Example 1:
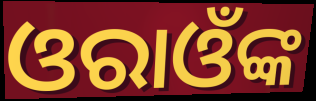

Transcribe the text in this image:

ଓରାଓଁଙ୍କ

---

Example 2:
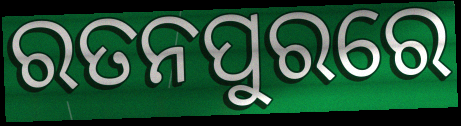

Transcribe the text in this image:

ରତନପୁରରେ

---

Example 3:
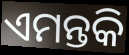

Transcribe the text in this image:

ଏମନ୍ତକି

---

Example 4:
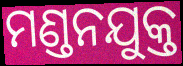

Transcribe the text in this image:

ମଣ୍ଡନଯୁକ୍ତ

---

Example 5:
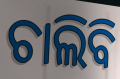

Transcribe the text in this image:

ଚାଲିବି